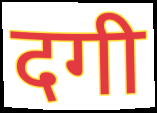
दगी